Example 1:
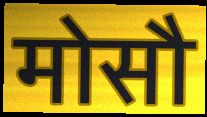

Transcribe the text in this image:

मोसौ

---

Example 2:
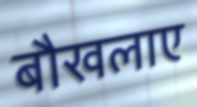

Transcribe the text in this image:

बौखलाए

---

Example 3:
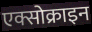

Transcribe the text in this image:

एक्सोक्राइन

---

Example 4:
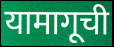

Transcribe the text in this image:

यामागूची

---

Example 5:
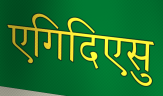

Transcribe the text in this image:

एगिदिएसु